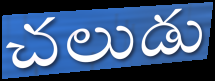
చలుడు